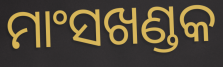
ମାଂସଖଣ୍ଡକ